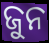
ଜୁନ